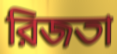
রিজতা